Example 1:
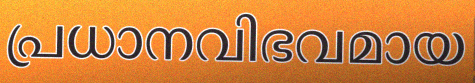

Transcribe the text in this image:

പ്രധാനവിഭവമായ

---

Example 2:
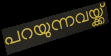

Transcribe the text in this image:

പറയുന്നവയ്ക്ക്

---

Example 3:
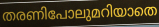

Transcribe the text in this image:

തരണിപോലുമറിയാതെ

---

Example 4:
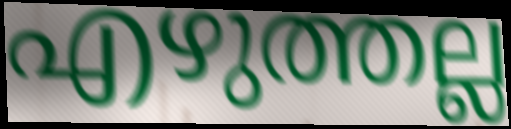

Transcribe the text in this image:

എഴുത്തല്ല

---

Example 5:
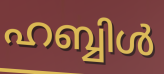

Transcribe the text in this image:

ഹബ്ബിൾ